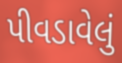
પીવડાવેલું